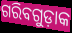
ଗରିବଗୁଡ଼ାକ